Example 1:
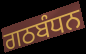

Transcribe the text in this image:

ਗਠਬੰਧਨ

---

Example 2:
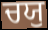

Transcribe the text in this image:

ਚਯੁ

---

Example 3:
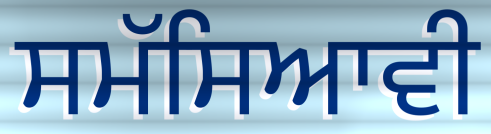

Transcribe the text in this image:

ਸਮੱਸਿਆਵੀ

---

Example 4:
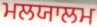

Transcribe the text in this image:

ਮਲਯਾਲਮ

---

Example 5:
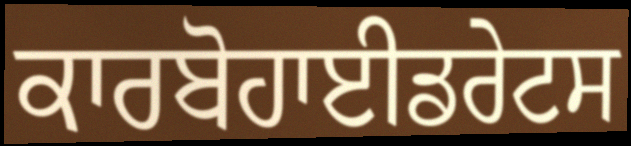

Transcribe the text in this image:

ਕਾਰਬੋਹਾਈਡਰੇਟਸ